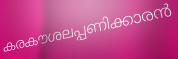
കരകൗശലപ്പണിക്കാരൻ